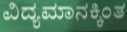
ವಿದ್ಯಮಾನಕ್ಕಿಂತ